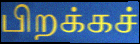
பிறக்கச்